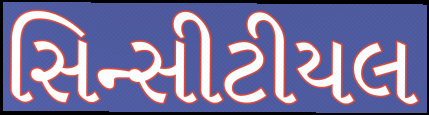
સિન્સીટીયલ